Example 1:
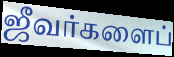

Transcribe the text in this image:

ஜீவர்களைப்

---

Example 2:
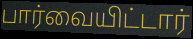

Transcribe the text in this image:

பார்வையிட்டார்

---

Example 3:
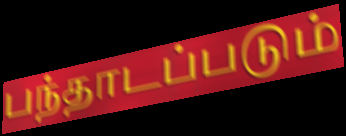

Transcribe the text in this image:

பந்தாடப்படும்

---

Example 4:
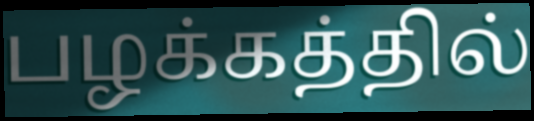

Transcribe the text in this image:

பழக்கத்தில்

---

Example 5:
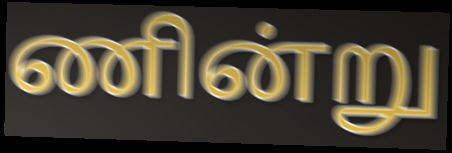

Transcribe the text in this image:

ணின்று